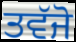
ਤਵੱਜੋ